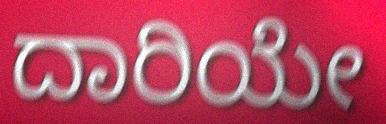
ದಾರಿಯೇ